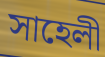
সাহেলী